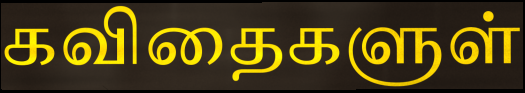
கவிதைகளுள்